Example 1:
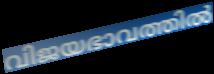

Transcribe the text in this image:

വിജയഭാവത്തിൽ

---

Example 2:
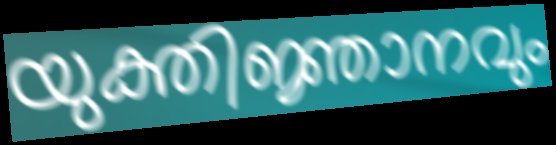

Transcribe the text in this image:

യുക്തിജ്ഞാനവും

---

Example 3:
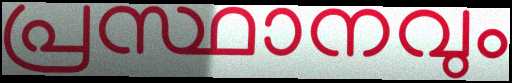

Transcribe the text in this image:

പ്രസ്ഥാനവും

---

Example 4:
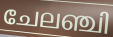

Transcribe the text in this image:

ചേലഞ്ചി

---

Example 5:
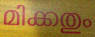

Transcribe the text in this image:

മിക്കതും